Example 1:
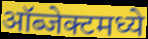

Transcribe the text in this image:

ऑब्जेक्टमध्ये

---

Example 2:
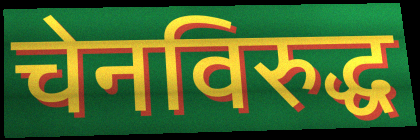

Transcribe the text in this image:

चेनविरुद्ध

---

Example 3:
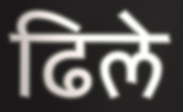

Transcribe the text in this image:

ढिले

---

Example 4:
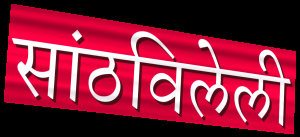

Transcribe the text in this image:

सांठविलेली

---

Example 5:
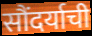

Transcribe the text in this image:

सौंदर्याची